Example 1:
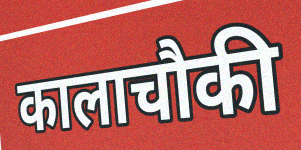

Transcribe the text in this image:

कालाचौकी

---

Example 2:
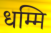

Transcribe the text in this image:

धम्मि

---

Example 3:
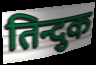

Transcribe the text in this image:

तिन्दुक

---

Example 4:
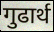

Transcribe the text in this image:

गुढार्थ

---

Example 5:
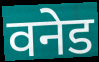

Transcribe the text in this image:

वनेड